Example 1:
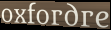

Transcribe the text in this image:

oxfordre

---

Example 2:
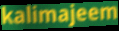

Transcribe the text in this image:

kalimajeem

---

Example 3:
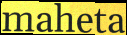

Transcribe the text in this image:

maheta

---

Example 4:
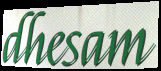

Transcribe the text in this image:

dhesam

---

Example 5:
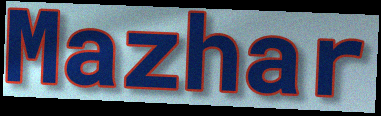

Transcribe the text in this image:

Mazhar